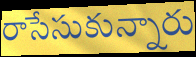
రాసేసుకున్నారు